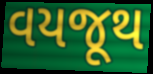
વયજૂથ